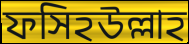
ফসিহউল্লাহ